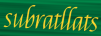
subratllats